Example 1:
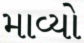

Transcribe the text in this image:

માવ્યો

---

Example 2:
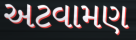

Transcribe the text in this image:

અટવામણ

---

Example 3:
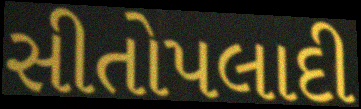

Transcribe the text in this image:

સીતોપલાદી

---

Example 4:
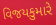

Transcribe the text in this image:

વિજયકુમારે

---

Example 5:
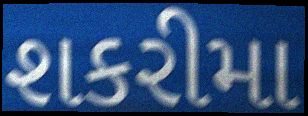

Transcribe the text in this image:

શકરીમા